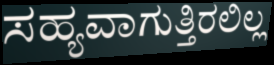
ಸಹ್ಯವಾಗುತ್ತಿರಲಿಲ್ಲ